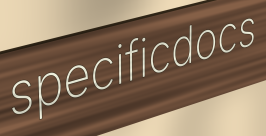
specificdocs